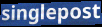
singlepost